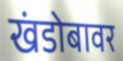
खंडोबावर